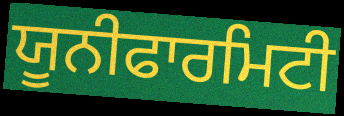
ਯੂਨੀਫਾਰਮਿਟੀ